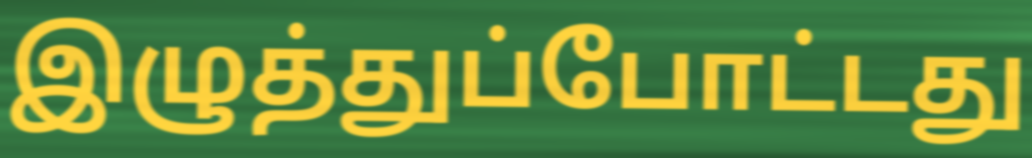
இழுத்துப்போட்டது